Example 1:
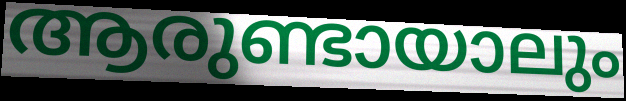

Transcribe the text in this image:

ആരുണ്ടായാലും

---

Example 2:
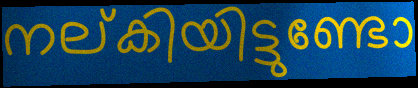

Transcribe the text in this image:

നല്കിയിട്ടുണ്ടോ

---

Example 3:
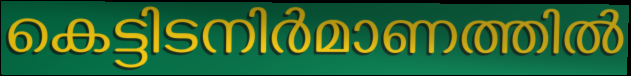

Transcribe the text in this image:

കെട്ടിടനിർമാണത്തിൽ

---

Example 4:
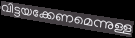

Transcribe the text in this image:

വിട്ടയക്കേണമെന്നുള്ള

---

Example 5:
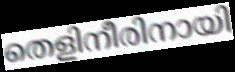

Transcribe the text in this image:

തെളിനീരിനായി